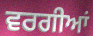
ਵਰਗੀਆਂ